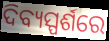
ଦିବ୍ୟସ୍ପର୍ଶରେ